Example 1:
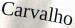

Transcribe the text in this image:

Carvalho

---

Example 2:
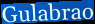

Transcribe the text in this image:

Gulabrao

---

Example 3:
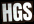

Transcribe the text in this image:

HGS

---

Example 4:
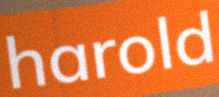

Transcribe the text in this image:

harold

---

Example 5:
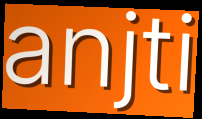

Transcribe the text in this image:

anjti